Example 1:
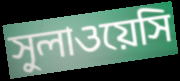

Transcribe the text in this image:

সুলাওয়েসি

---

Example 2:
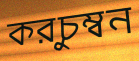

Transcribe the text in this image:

করচুম্বন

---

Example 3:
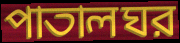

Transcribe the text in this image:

পাতালঘর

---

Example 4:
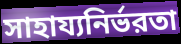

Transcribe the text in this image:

সাহায্যনির্ভরতা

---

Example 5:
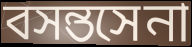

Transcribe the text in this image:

বসন্তসেনা